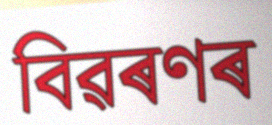
বিৱৰণৰ